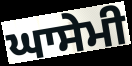
ਘਾਸੇਮੀ